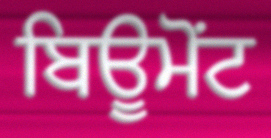
ਬਿਊਮੋਂਟ